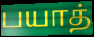
பயாத்